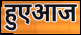
हुएआज